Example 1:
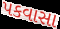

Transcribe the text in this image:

પકવાસા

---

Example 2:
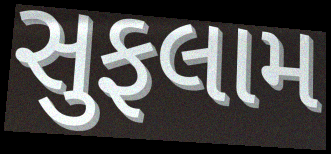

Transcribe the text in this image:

સુફલામ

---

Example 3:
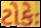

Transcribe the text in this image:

ટોકેઃ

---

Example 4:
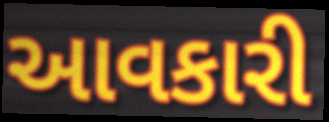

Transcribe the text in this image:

આવકારી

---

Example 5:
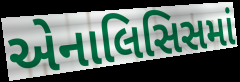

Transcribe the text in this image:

એનાલિસિસમાં